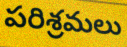
పరిశ్రమలు